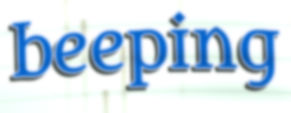
beeping